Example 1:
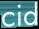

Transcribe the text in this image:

cid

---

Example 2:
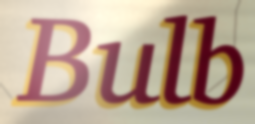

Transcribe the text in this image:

Bulb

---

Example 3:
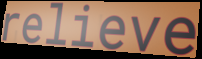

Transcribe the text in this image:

relieve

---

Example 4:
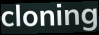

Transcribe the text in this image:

cloning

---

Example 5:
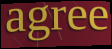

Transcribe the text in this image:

agree